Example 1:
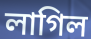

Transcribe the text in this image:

লাগিল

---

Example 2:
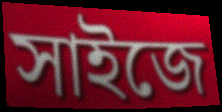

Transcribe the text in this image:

সাইজে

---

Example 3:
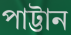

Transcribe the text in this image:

পাট্টান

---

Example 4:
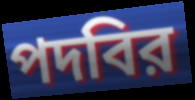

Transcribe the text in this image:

পদবির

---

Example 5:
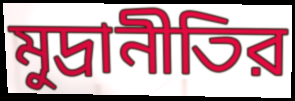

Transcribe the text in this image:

মুদ্রানীতির